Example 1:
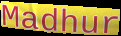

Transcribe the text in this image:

Madhur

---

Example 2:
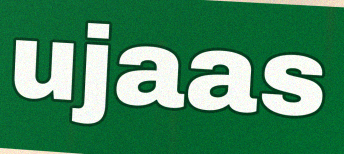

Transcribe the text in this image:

ujaas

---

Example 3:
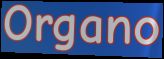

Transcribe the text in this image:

Organo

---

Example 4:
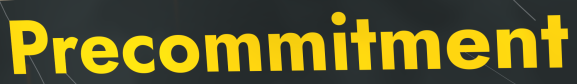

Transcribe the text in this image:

Precommitment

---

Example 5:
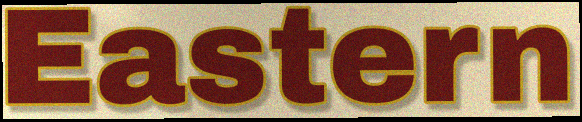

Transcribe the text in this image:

Eastern